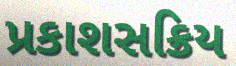
પ્રકાશસક્રિય